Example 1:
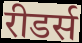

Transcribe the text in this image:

रीडर्स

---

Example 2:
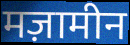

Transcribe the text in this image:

मज़ामीन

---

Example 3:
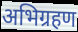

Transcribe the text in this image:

अभिग्रहण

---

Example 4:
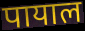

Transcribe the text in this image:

पायाल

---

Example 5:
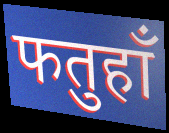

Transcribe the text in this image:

फतुहाँ